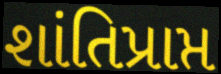
શાંતિપ્રાપ્ત